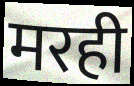
मरही